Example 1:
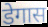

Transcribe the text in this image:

डेगास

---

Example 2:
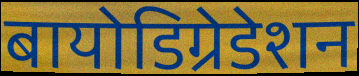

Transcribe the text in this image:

बायोडिग्रेडेशन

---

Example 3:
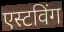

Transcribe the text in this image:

एस्टविंग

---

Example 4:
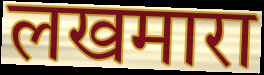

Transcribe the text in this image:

लखमारा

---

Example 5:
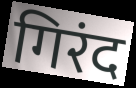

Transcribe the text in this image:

गिरंद